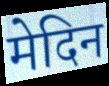
मेदिन